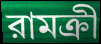
রামক্রী